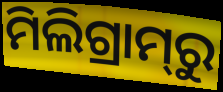
ମିଲିଗ୍ରାମ୍‌ରୁ